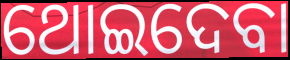
ଥୋଇଦେବା